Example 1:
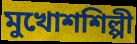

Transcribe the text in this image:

মুখোশশিল্পী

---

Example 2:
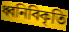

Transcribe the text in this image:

ধ্বনিবিকৃতি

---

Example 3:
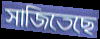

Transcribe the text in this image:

সাজিতেছে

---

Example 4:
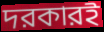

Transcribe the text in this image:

দরকারই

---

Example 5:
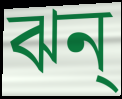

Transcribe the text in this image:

ঝন্